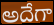
అదేగా